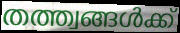
തത്ത്വങ്ങൾക്ക്